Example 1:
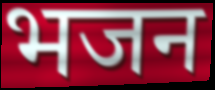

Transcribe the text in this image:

भजन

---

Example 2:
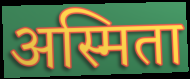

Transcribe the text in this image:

अस्मिता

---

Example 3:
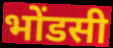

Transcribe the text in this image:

भोंडसी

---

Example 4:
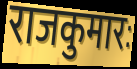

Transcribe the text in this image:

राजकुमारः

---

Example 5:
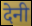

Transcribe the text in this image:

देनी